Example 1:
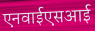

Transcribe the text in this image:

एनवाईएसआई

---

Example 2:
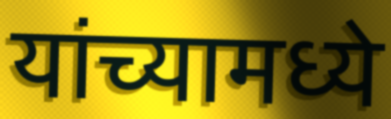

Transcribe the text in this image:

यांच्यामध्ये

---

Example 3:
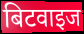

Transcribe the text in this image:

बिटवाइज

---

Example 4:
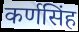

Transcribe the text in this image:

कर्णसिंह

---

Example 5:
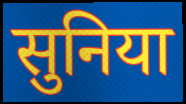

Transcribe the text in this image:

सुनिया